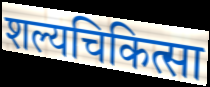
शल्‍यचिकित्‍सा